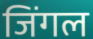
जिंगल